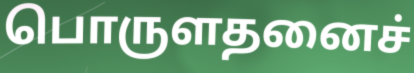
பொருளதனைச்